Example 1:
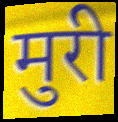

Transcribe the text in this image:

मुरी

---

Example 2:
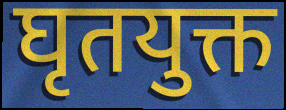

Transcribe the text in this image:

घृतयुक्त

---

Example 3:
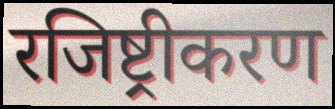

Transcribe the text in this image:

रजिष्ट्रीकरण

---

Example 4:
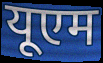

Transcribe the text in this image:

यूएम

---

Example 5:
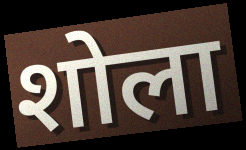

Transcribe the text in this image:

शोला